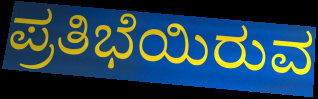
ಪ್ರತಿಭೆಯಿರುವ